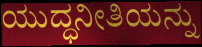
ಯುದ್ಧನೀತಿಯನ್ನು